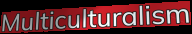
Multiculturalism